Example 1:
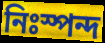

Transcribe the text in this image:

নিঃস্পন্দ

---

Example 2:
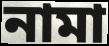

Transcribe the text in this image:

নামা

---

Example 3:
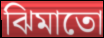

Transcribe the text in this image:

ঝিমাতো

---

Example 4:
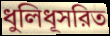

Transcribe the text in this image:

ধুলিধূসরিত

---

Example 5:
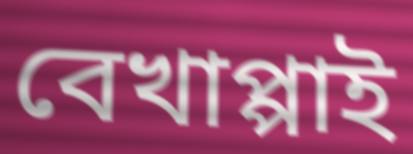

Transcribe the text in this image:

বেখাপ্পাই